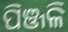
ପିଞ୍ଜଳି